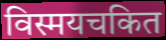
विस्मयचकित